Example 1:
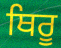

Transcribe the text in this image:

ਥਿਰੂ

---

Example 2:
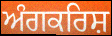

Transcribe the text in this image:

ਅੰਗਕਰਿਸ਼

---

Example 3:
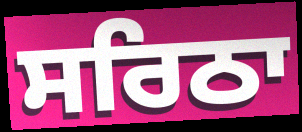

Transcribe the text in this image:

ਸਰਿਠਾ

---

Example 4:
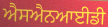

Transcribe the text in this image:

ਐਸਐਨਆਈਡੀ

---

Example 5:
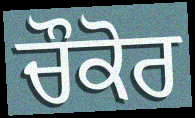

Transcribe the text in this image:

ਚੌਕੋਰ